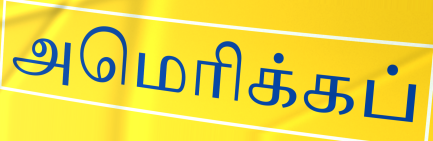
அமெரிக்கப்